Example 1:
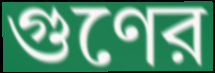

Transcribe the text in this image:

গুণের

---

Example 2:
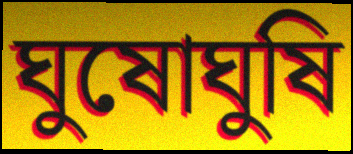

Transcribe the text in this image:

ঘুষোঘুষি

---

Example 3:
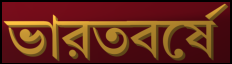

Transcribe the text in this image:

ভারতবর্ষে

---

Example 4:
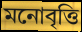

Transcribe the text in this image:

মনোবৃত্তি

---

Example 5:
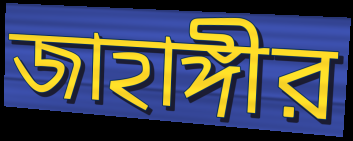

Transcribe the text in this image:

জাহাঙ্গীর